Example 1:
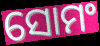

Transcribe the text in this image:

ସୋମଂ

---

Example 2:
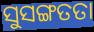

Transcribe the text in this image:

ସୁସଙ୍ଗତତା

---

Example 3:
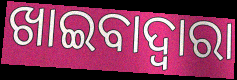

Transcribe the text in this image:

ଖାଇବାଦ୍ୱାରା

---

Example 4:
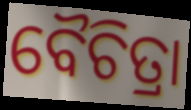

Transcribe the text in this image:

ବୈଚିତ୍ରା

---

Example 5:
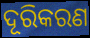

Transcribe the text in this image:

ଦୂରିକରଣ